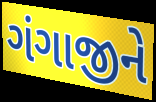
ગંગાજીને